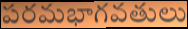
పరమభాగవతులు